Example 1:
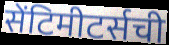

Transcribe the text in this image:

सेंटिमीटर्सची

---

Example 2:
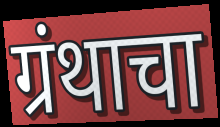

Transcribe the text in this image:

ग्रंथाचा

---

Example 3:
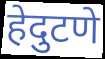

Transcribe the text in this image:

हेदुटणे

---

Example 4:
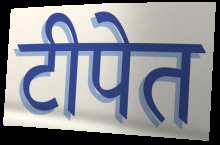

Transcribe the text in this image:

टीपेत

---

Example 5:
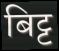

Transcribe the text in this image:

बिट्ट